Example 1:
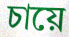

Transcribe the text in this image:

চায়ে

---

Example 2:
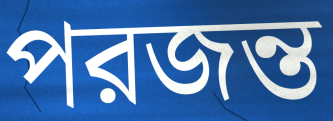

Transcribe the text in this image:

পরজন্ত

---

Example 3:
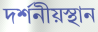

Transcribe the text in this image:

দর্শনীয়স্থান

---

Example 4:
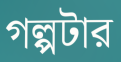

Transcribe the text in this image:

গল্পটার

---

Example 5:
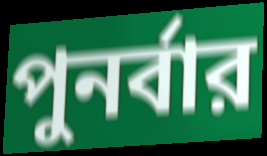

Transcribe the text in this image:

পুনর্বার